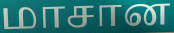
மாசான